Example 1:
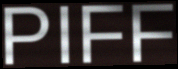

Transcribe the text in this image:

PIFF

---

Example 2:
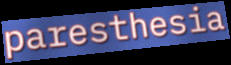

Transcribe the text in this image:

paresthesia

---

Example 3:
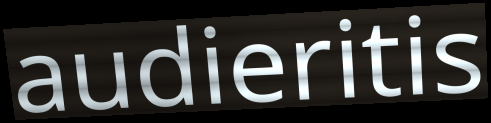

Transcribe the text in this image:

audieritis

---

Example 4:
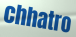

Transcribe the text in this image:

chhatro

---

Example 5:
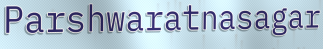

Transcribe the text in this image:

Parshwaratnasagar